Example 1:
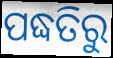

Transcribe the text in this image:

ପଦ୍ଧତିରୁ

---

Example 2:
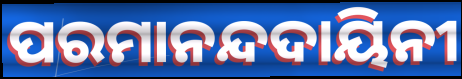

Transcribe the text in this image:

ପରମାନନ୍ଦଦାୟିନୀ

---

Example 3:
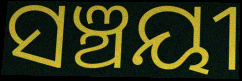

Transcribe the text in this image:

ସଞ୍ଚୟୀ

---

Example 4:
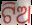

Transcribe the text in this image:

ଟିଅ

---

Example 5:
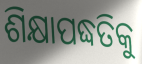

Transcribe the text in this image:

ଶିକ୍ଷାପଦ୍ଧତିକୁ